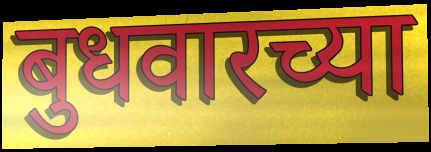
बुधवारच्या